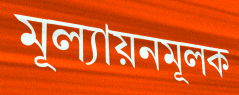
মূল্যায়নমূলক